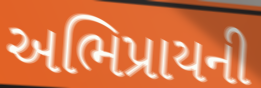
અભિપ્રાયની